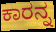
ಕಾರನ್ನ